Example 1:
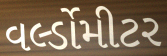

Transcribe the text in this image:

વર્લ્ડોમીટર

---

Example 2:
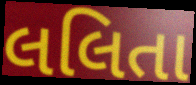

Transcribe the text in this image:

લલિતા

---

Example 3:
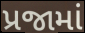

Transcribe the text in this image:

પ્રજામાં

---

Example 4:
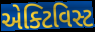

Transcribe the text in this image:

એક્ટિવિસ્ટ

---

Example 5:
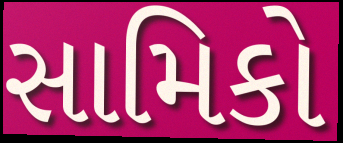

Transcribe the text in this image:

સામિકો